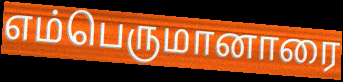
எம்பெருமானாரை